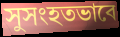
সুসংহতভাবে